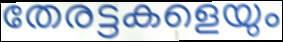
തേരട്ടകളെയും